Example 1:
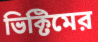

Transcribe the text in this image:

ভিক্টিমের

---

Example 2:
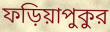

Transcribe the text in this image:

ফড়িয়াপুকুর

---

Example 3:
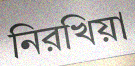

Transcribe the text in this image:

নিরখিয়া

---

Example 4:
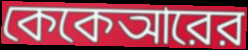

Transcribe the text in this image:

কেকেআরের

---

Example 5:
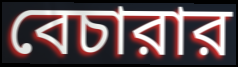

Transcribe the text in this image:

বেচারার